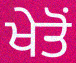
ਖੇਤੋਂ